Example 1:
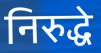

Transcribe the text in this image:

निरुद्धे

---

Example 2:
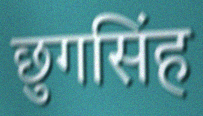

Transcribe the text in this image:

छुगसिंह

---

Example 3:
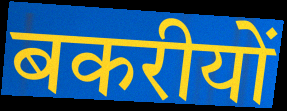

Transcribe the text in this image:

बकरीयों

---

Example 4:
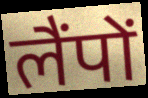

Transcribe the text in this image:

लैंपों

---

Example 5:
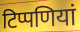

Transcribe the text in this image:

टिप्पणियां